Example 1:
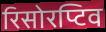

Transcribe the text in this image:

रिसोरप्टिव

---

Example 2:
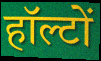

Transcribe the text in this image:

हॉल्टों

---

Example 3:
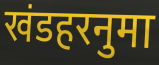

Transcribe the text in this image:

खंडहरनुमा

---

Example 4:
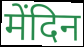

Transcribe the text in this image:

मेंदिन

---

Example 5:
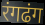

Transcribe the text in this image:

रंगढंग